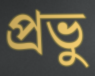
প্রভু